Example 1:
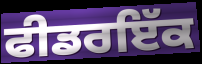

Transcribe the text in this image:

ਫੀਡਰਇੱਕ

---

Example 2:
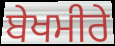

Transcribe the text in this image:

ਬੇਖਮੀਰੇ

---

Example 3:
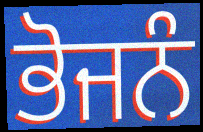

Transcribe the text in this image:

ਭੋਜਨੰ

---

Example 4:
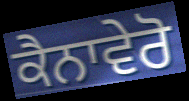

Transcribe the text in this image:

ਕੈਨਾਵੇਰੋ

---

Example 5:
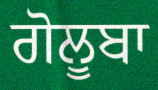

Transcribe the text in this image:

ਗੋਲੂਬਾ